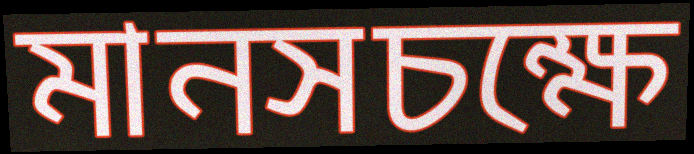
মানসচক্ষে